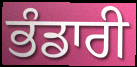
ਭੰਡਾਰੀ